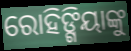
ରୋହିଙ୍ଗିୟାଙ୍କୁ